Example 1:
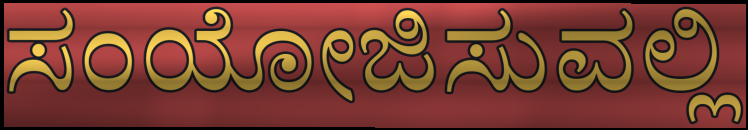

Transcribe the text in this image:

ಸಂಯೋಜಿಸುವಲ್ಲಿ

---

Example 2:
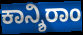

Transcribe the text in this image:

ಕಾನ್ಶಿರಾಂ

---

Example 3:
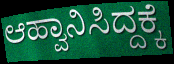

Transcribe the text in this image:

ಆಹ್ವಾನಿಸಿದ್ದಕ್ಕೆ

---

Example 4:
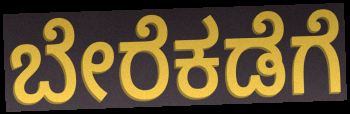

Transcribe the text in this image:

ಬೇರೆಕಡೆಗೆ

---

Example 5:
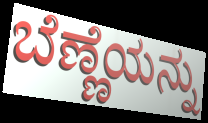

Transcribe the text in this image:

ಬೆಣ್ಣೆಯನ್ನು